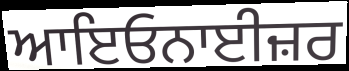
ਆਇਓਨਾਈਜ਼ਰ